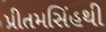
પ્રીતમસિંહથી